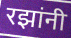
रझांनी